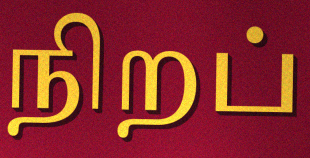
நிறப்